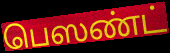
பெஸண்ட்